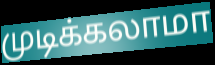
முடிக்கலாமா